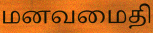
மனவமைதி